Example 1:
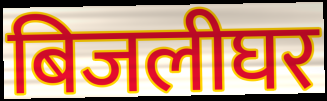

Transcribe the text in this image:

बिजलीघर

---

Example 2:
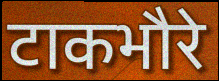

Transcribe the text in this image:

टाकभौरे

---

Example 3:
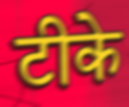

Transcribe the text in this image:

टीके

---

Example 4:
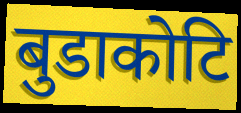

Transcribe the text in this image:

बुडाकोटि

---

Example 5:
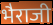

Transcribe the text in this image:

भैराजी